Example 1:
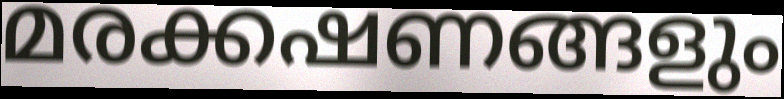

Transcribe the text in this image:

മരക്കഷണങ്ങളും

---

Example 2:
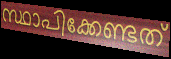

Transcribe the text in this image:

സ്ഥാപിക്കേണ്ടത്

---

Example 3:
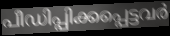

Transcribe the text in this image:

പീഡിപ്പിക്കപ്പെട്ടവർ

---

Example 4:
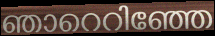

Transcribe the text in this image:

ഞാറെറിഞ്ഞേ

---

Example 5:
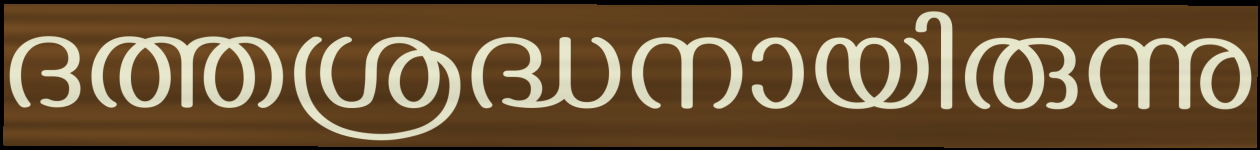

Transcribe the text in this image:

ദത്തശ്രദ്ധനായിരുന്നു